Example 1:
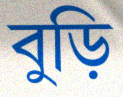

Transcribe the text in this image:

বুড়ি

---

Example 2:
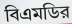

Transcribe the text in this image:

বিএমডির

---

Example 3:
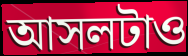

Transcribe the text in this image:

আসলটাও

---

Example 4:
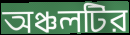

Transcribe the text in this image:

অঞ্চলটির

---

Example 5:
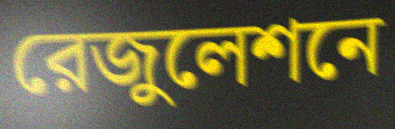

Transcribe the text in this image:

রেজুলেশনে